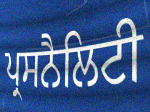
ਪ੍ਰਸਨੈਲਿਟੀ